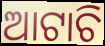
ଆଟାଚି